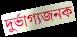
দুর্ভাগ্যজনক